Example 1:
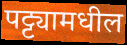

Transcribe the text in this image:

पट्ट्यामधील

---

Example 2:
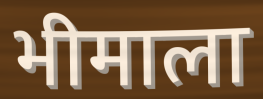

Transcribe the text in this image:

भीमाला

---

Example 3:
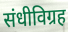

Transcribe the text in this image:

संधीविग्रह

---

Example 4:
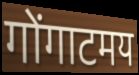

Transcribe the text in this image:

गोंगाटमय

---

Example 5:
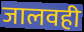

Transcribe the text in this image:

जालवही